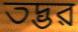
তদ্ভৱ